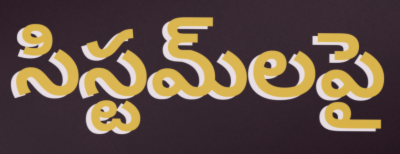
సిస్టమ్‌లపై